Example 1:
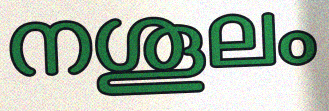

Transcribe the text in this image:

നശൂലം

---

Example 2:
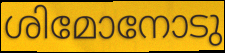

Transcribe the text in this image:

ശിമോനോടു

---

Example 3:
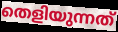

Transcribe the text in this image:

തെളിയുന്നത്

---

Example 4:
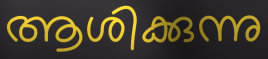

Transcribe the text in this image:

ആശിക്കുന്നു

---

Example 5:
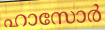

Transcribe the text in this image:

ഹാസോർ